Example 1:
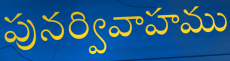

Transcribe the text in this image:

పునర్వివాహము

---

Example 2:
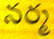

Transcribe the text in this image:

నర్మ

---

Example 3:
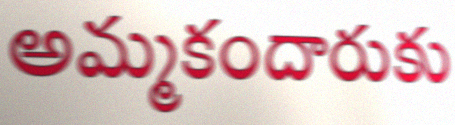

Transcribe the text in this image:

అమ్మకందారుకు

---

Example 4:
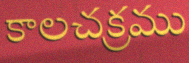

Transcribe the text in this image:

కాలచక్రము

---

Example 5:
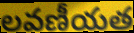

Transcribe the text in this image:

లవణీయత